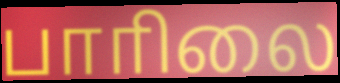
பாரிலை